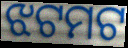
ଝଟମଟ